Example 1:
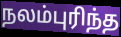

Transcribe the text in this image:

நலம்புரிந்த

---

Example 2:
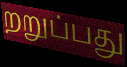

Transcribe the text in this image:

றறுப்பது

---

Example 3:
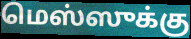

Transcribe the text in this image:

மெஸ்ஸுக்கு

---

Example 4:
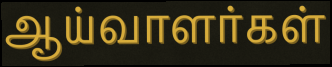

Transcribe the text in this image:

ஆய்வாளர்கள்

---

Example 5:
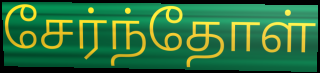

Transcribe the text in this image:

சேர்ந்தோள்